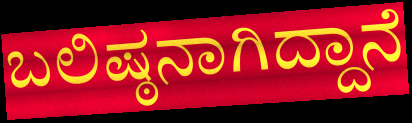
ಬಲಿಷ್ಠನಾಗಿದ್ದಾನೆ